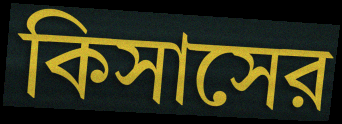
কিসাসের